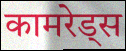
कामरेड्स